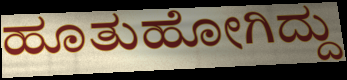
ಹೂತುಹೋಗಿದ್ದು